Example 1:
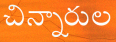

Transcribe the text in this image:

చిన్నారుల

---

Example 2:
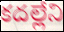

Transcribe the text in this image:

కదల్లేని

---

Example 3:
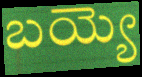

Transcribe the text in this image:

బయ్యె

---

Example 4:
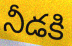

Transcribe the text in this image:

నీడకి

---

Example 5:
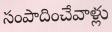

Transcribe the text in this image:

సంపాదించేవాళ్లు